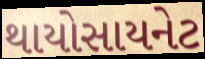
થાયોસાયનેટ